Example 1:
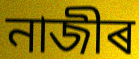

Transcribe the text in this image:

নাজীৰ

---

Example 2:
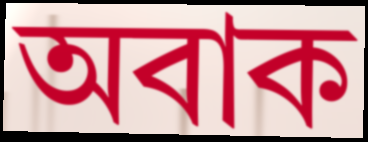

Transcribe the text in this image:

অবাক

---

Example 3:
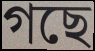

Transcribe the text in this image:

গছে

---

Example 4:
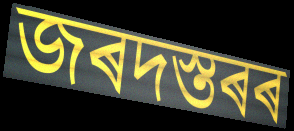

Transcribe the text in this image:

জৰদস্তৰৰ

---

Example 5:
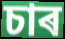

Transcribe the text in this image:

চাৰ